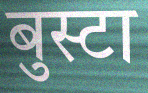
बुस्टा